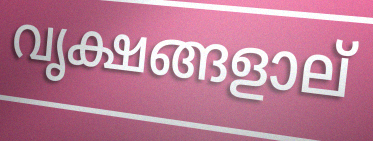
വൃക്ഷങ്ങളാല്